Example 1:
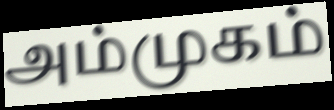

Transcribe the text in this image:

அம்முகம்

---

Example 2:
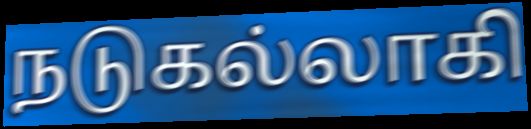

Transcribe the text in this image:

நடுகல்லாகி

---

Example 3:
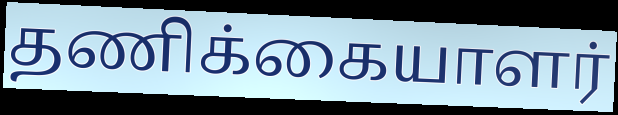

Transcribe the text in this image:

தணிக்கையாளர்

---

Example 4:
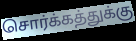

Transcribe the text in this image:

சொர்க்கத்துக்கு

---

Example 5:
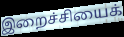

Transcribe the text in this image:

இறைச்சியைக்